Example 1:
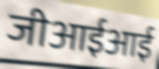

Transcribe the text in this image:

जीआईआई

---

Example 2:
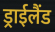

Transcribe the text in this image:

ड्राईलैंड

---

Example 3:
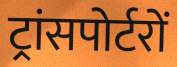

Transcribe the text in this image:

ट्रांसपोर्टरों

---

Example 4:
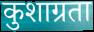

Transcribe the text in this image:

कुशाग्रता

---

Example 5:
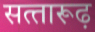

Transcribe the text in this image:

सत्‍तारूढ़